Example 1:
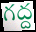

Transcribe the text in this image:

గద్ద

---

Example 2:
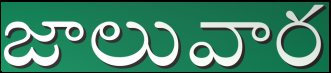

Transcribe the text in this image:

జాలువార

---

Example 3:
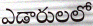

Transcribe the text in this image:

ఎడారులలో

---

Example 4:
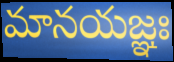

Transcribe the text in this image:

మానయజ్ఞః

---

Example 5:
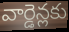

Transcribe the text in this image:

వార్డెన్లకు